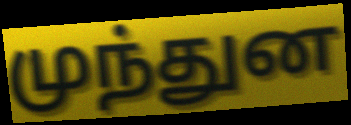
முந்துன